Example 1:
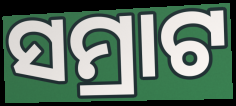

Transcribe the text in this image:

ସମ୍ରାଟ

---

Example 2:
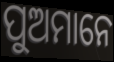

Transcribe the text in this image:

ପୁଅମାନେ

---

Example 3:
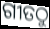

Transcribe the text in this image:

ଗୀତଠୁ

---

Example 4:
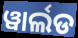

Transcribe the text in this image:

ୱାର୍ଲଡ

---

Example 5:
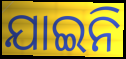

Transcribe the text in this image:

ଯାଇନି